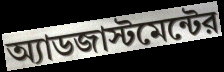
অ্যাডজাস্টমেন্টের